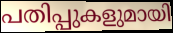
പതിപ്പുകളുമായി